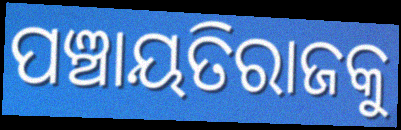
ପଞ୍ଚାୟତିରାଜକୁ